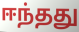
ஈந்தது